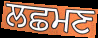
ਲਛਮਣ